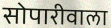
सोपारीवाला